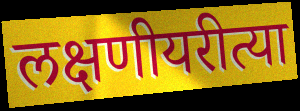
लक्षणीयरीत्या